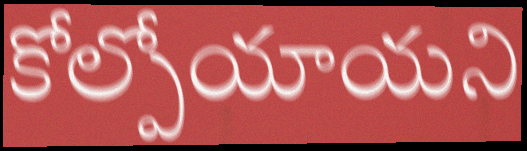
కోల్పోయాయని